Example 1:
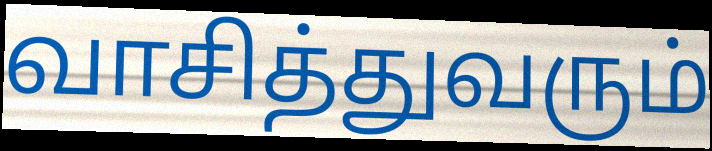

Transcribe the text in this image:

வாசித்துவரும்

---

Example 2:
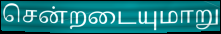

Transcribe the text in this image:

சென்றடையுமாறு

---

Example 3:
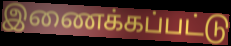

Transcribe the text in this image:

இணைக்கப்பட்டு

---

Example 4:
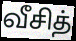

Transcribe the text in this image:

வீசித்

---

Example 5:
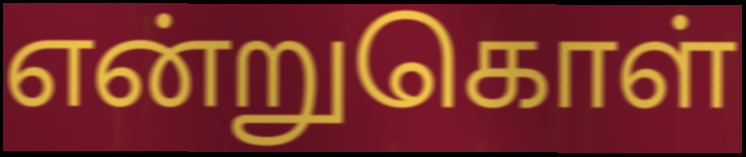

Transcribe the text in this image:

என்றுகொள்